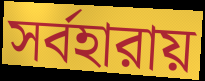
সর্বহারায়